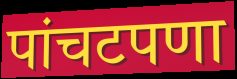
पांचटपणा